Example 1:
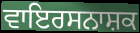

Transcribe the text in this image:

ਵਾਇਰਸਨਾਸ਼ਕ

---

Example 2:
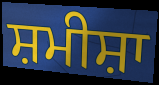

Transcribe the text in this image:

ਸ਼ਮੀਸ਼ਾ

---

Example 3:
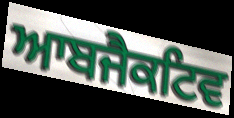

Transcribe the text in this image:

ਆਬਜੈਕਟਿਵ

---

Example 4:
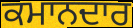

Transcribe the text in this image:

ਕਮਾਨਦਾਰ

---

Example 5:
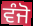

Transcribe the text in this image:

ਵੰਜੋ